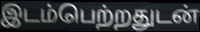
இடம்பெற்றதுடன்